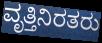
ವೃತ್ತಿನಿರತರು